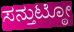
ಸನ್ತುಟ್ಠೋ